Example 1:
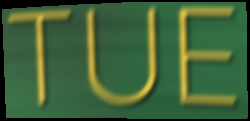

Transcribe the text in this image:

TUE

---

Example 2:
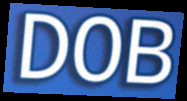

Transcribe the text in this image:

DOB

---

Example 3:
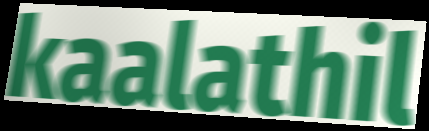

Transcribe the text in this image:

kaalathil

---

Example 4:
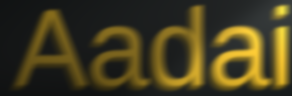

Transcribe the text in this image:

Aadai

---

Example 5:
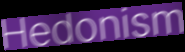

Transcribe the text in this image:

Hedonism